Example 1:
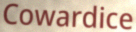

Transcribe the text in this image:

Cowardice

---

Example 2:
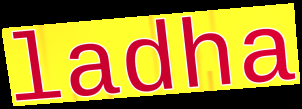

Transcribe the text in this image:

ladha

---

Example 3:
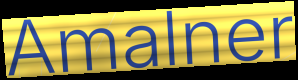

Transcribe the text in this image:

Amalner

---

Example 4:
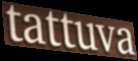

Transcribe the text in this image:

tattuva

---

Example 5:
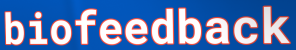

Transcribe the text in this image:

biofeedback